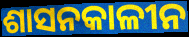
ଶାସନକାଳୀନ